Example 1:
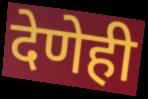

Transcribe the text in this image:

देणेही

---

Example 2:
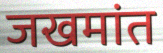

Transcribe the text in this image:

जखमांत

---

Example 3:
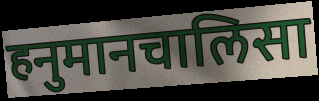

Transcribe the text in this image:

हनुमानचालिसा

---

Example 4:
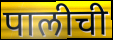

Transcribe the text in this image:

पालीची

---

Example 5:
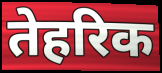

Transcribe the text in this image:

तेहरिक